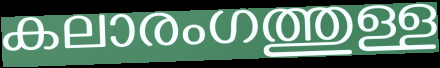
കലാരംഗത്തുള്ള